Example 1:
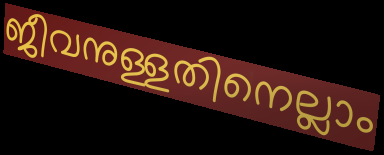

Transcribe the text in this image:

ജീവനുള്ളതിനെല്ലാം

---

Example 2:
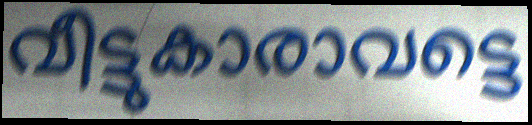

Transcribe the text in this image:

വീട്ടുകാരാവട്ടെ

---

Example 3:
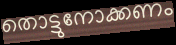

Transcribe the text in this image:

തൊട്ടുനോക്കണം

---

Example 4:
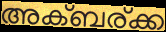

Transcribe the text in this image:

അക്ബര്ക്ക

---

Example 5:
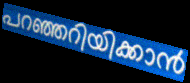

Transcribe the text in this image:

പറഞ്ഞറിയിക്കാൻ